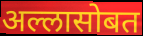
अल्लासोबत